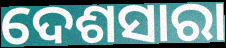
ଦେଶସାରା